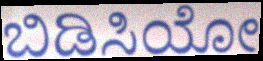
ಬಿಡಿಸಿಯೋ